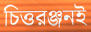
চিত্তরঞ্জনই